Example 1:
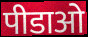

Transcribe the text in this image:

पीडाओ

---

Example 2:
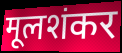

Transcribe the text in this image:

मूलशंकर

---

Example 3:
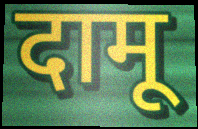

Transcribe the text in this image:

दामू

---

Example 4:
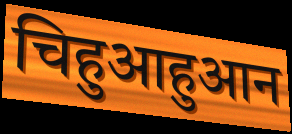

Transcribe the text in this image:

चिहुआहुआन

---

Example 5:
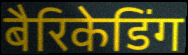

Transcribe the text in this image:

बैरिकेडिंग